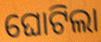
ଘୋଟିଲା